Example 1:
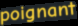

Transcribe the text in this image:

poignant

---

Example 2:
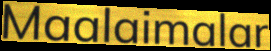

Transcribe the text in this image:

Maalaimalar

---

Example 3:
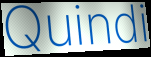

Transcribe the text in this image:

Quindi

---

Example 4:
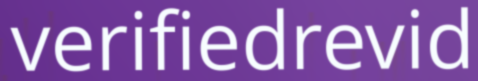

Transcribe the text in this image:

verifiedrevid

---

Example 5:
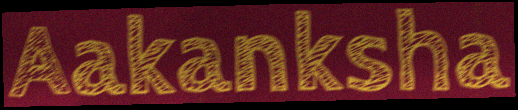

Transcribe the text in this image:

Aakanksha